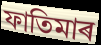
ফাতিমাৰ